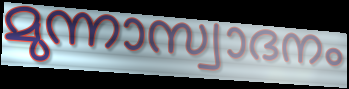
മുന്നാസ്വാദനം